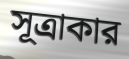
সূত্রাকার